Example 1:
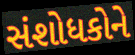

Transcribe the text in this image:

સંશોધકોને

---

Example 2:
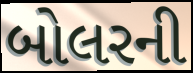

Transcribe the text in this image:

બોલરની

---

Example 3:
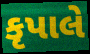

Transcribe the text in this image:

કૃપાલે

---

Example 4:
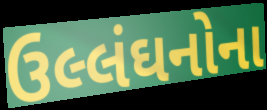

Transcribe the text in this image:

ઉલ્લંઘનોના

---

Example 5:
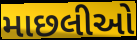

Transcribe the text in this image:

માછલીઓ